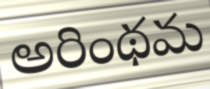
అరింథమ